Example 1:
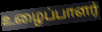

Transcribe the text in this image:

உழைப்பாளர்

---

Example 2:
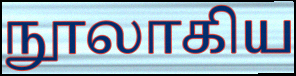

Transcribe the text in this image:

நூலாகிய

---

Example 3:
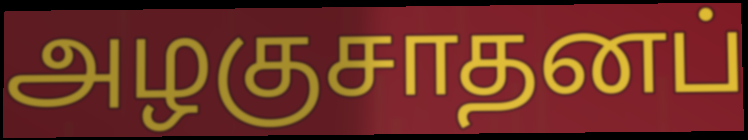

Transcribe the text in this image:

அழகுசாதனப்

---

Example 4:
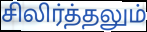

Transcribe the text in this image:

சிலிர்த்தலும்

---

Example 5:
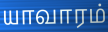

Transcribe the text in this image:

யாவாரம்